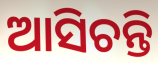
ଆସିଚନ୍ତି